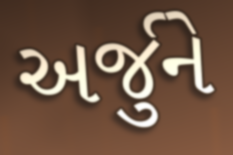
અર્જુને